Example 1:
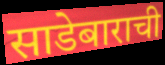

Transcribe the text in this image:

साडेबाराची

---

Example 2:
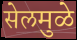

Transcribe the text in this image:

सेलमुळे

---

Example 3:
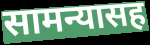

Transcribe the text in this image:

सामन्यासह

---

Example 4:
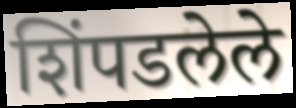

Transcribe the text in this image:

शिंपडलेले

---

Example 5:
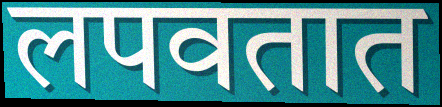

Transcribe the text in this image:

लपवतात